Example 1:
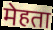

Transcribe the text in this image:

मेहता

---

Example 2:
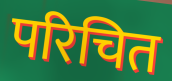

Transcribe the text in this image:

परिचित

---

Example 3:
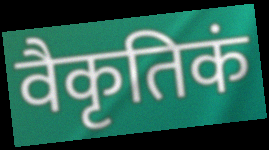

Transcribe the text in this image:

वैकृतिकं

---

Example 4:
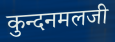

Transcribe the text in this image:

कुन्दनमलजी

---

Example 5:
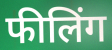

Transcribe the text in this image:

फीलिंग